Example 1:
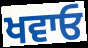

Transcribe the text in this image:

ਖਵਾਓ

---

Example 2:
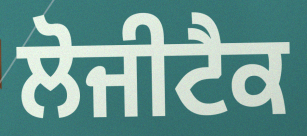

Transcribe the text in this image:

ਲੋਜੀਟੈਕ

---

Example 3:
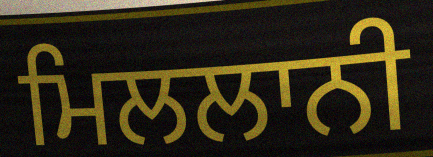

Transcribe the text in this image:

ਮਿਲਲਾਨੀ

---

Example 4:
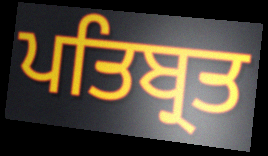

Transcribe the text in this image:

ਪਤਿਬ੍ਰਤ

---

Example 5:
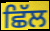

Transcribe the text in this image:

ਛਿੱਲ